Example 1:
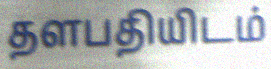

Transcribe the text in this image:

தளபதியிடம்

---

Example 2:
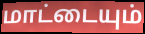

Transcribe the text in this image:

மாட்டையும்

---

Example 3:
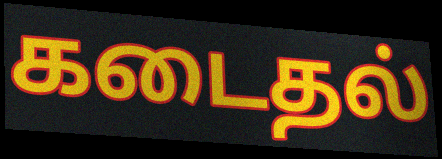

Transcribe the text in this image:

கடைதல்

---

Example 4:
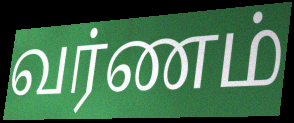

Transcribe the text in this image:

வர்ணம்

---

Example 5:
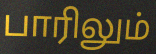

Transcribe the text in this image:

பாரிலும்